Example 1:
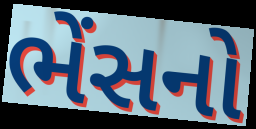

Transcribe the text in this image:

ભેંસનો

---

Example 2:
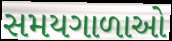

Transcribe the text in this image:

સમયગાળાઓ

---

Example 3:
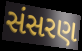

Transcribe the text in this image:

સંસરણ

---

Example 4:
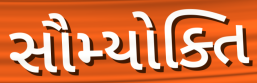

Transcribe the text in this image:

સૌમ્યોક્તિ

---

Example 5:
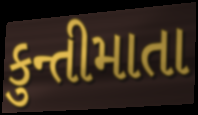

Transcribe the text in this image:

કુન્તીમાતા